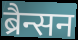
ब्रैन्सन